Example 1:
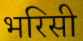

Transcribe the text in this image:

भरिसी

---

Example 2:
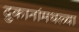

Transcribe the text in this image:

दुकानांमधल्या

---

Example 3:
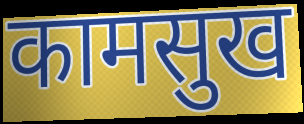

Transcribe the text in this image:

कामसुख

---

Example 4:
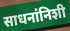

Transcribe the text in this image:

साधनांनिशी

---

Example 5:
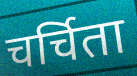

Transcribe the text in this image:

चर्चिता